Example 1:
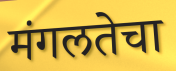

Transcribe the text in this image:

मंगलतेचा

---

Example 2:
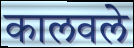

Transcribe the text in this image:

कालवले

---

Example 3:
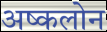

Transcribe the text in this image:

अष्कलोन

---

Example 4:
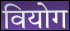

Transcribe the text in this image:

वियोग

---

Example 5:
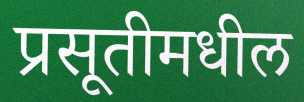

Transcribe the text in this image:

प्रसूतीमधील